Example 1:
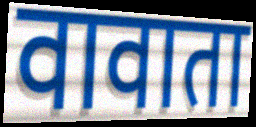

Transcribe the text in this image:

वावाता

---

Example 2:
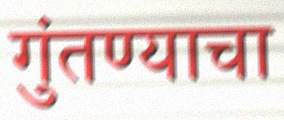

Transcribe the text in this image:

गुंतण्याचा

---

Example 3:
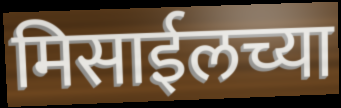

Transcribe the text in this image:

मिसाईलच्या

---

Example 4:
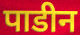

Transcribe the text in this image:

पाडीन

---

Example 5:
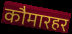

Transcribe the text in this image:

कौमारहर